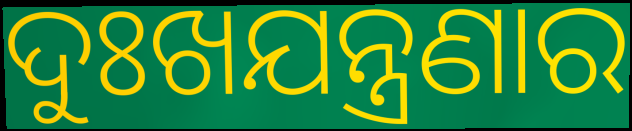
ଦୁଃଖଯନ୍ତ୍ରଣାର